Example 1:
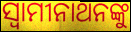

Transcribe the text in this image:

ସ୍ୱାମୀନାଥନଙ୍କୁ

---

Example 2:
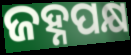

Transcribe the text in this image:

ଜହ୍ନପକ୍ଷ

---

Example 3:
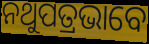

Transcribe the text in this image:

ନଥୁପତ୍ରଭାବେ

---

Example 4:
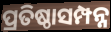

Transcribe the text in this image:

ପ୍ରତିଷ୍ଠାସମ୍ପନ୍ନ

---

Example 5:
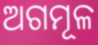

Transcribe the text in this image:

ଅଗମୂଳ